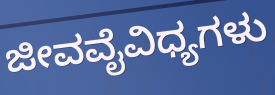
ಜೀವವೈವಿಧ್ಯಗಳು